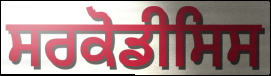
ਸਰਕੋਡੀਸਿਸ